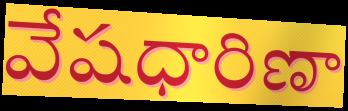
వేషధారిణా